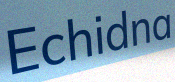
Echidna